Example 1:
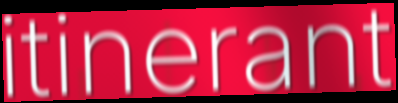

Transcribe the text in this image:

itinerant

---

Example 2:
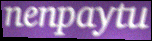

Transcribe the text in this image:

nenpaytu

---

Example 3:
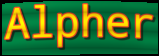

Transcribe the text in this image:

Alpher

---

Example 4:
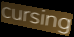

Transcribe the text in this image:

cursing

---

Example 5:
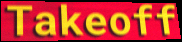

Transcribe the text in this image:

Takeoff